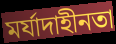
মর্যাদাহীনতা